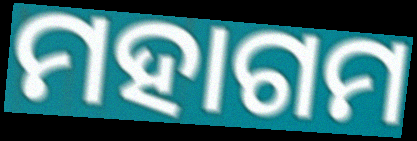
ମହାଗମ